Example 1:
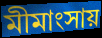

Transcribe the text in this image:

মীমাংসায়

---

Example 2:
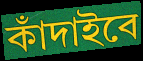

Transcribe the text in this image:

কাঁদাইবে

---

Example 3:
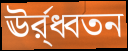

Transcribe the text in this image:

ঊর্র্ধ্বতন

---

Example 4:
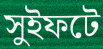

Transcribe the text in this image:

সুইফটে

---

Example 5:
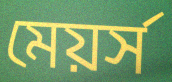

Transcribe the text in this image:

মেয়র্স